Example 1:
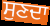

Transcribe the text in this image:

ਸੁਣਦਾ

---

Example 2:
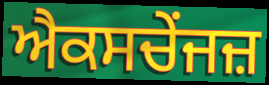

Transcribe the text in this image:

ਐਕਸਚੇਂਜਜ਼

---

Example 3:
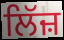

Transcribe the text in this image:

ਲਿੱਜ਼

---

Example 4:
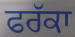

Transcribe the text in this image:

ਫਰੱਕਾ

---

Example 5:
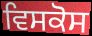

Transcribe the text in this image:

ਵਿਸਕੋਸ